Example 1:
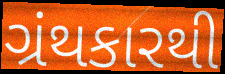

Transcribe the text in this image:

ગ્રંથકારથી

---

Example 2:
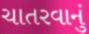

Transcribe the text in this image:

ચાતરવાનું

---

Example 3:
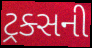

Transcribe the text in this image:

ટ્રક્સની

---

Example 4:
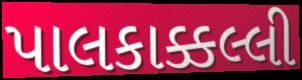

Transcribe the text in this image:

પાલકાક્કલ્લી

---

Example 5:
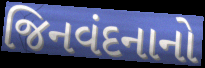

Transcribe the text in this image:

જિનવંદનાનો